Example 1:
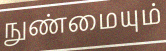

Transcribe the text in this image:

நுண்மையும்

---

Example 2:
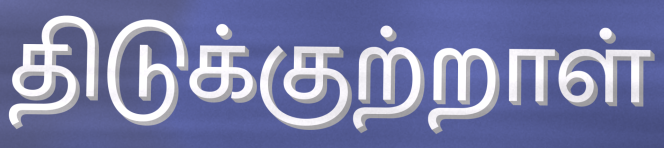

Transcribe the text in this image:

திடுக்குற்றாள்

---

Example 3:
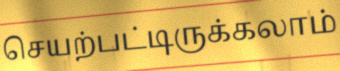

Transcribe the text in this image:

செயற்பட்டிருக்கலாம்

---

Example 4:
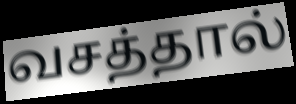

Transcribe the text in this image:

வசத்தால்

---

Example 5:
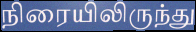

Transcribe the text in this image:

நிரையிலிருந்து